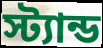
স্ট্যান্ড